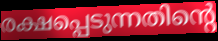
രക്ഷപ്പെടുന്നതിന്റെ